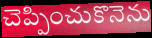
చెప్పించుకొనెను